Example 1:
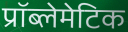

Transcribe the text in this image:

प्रॉब्लेमेटिक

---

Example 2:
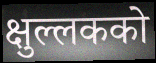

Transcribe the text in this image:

क्षुल्लकको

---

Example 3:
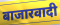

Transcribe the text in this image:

बाजारवादी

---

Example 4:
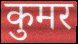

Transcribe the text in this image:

कुमर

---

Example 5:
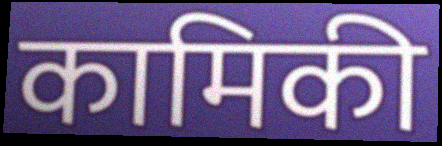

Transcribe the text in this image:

कामिकी